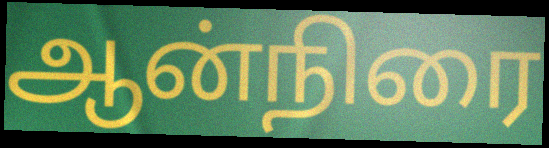
ஆன்நிரை